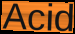
Acid